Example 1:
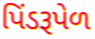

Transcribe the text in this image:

પિંડરૂપેળ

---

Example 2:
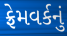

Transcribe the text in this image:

ફ્રેમવર્કનું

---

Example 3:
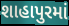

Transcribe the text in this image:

શાહાપુરમાં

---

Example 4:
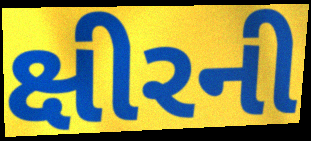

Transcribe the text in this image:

ક્ષીરની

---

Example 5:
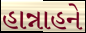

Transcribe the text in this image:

હાન્નાહને